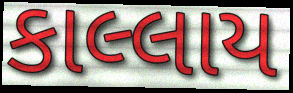
કાલ્લાય